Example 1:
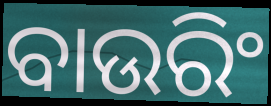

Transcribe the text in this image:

ବାଉରିଂ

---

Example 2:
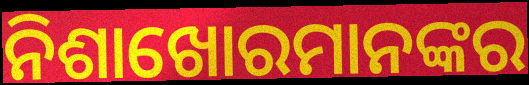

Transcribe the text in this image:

ନିଶାଖୋରମାନଙ୍କର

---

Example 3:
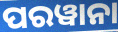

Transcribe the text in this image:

ପରୱାନା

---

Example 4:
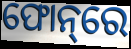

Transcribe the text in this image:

ଫୋନ୍‌ରେ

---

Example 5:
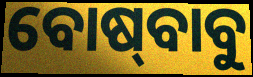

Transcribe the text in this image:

ବୋଷ୍‍ବାବୁ